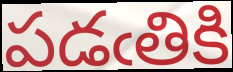
పడఁతికి